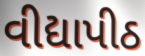
વીદ્યાપીઠ